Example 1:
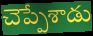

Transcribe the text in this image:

చెప్పేశాడు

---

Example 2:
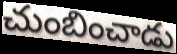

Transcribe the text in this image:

చుంబించాడు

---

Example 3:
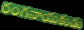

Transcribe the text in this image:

రంగనాయకుడు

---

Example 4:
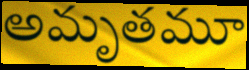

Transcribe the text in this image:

అమృతమూ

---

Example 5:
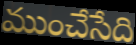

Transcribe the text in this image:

ముంచేసేది